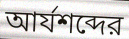
আর্যশব্দের